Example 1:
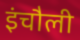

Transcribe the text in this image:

इंचौली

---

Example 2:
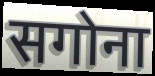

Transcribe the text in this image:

सगोना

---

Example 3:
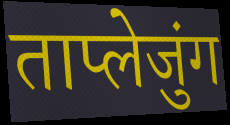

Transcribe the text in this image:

ताप्लेजुंग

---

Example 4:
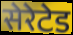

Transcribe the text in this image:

सेरेटेड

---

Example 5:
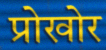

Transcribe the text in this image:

प्रोखोर